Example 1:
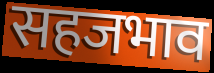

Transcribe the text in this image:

सहजभाव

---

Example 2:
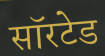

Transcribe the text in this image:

सॉरटेड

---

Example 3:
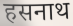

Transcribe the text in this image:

हसनाथ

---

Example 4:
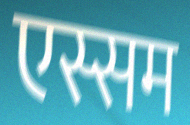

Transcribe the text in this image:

एस्सम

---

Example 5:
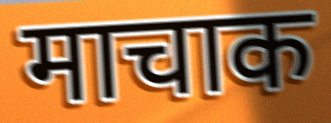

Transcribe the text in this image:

माचाक